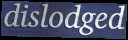
dislodged